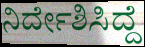
ನಿರ್ದೇಶಿಸಿದ್ದೆ